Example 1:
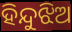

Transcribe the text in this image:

ହିନ୍ଦୁଝିଅ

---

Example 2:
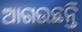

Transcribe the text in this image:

ଆଗଉଛନ୍ତି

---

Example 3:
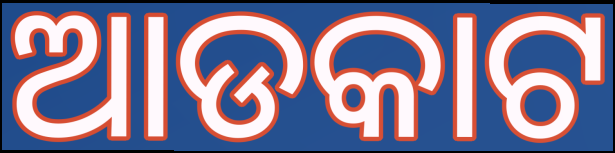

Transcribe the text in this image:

ଆଡକାଟ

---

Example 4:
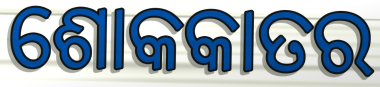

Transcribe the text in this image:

ଶୋକକାତର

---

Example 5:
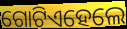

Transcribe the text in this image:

ଗୋଟିଏହେଲେ